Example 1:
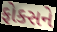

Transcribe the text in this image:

ફોકસને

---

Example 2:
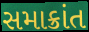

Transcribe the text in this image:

સમાક્રાંત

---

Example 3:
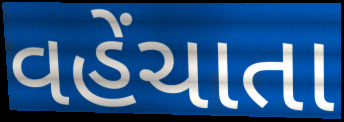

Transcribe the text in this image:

વહેંચાતા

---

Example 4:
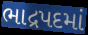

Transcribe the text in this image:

ભાદ્રપદમાં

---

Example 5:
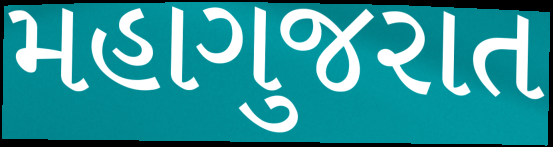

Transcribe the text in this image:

મહાગુજરાત